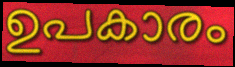
ഉപകാരം